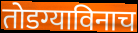
तोडग्याविनाच